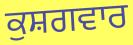
ਕੁਸ਼ਗਵਾਰ